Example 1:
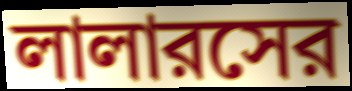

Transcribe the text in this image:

লালারসের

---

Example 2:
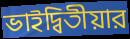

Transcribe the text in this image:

ভাইদ্বিতীয়ার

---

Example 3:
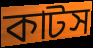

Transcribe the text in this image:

কাটস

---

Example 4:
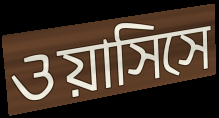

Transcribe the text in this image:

ওয়াসিসে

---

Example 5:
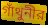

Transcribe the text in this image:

গাঁথুনীর